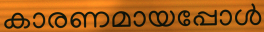
കാരണമായപ്പോൾ